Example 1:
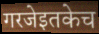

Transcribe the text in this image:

गरजेइतकेच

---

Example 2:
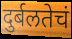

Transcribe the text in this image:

दुर्बलतेचं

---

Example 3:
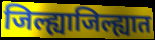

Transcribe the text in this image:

जिल्ह्याजिल्ह्यात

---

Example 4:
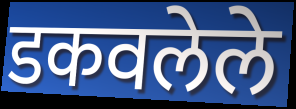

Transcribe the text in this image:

डकवलेले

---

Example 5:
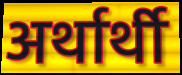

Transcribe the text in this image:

अर्थार्थी